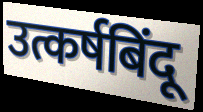
उत्कर्षबिंदू